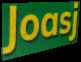
Joasj